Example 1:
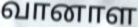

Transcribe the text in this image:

வானாள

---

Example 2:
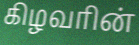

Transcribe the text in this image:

கிழவரின்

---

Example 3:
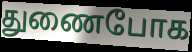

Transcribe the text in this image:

துணைபோக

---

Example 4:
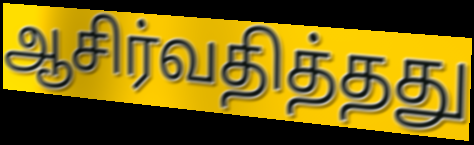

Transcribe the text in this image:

ஆசிர்வதித்தது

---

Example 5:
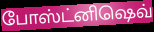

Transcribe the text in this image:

போஸ்ட்னிஷெவ்